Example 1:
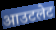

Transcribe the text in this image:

आउटलेट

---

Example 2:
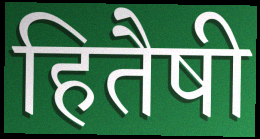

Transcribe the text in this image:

हितैषी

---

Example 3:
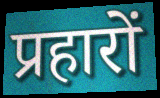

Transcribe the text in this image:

प्रहारों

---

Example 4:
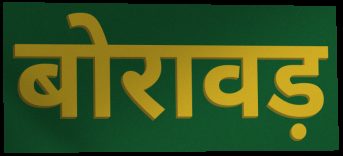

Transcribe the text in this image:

बोरावड़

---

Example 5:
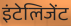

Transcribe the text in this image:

इंटेलिजेंट